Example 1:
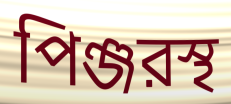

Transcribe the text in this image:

পিঞ্জরস্থ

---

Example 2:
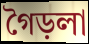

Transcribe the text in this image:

গৈড়লা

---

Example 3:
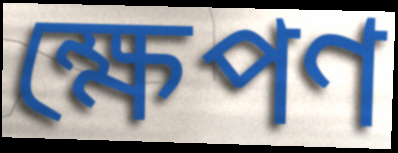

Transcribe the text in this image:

ক্ষেপণ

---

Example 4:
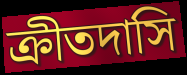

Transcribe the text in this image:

ক্রীতদাসি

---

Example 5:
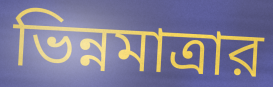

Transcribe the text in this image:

ভিন্নমাত্রার